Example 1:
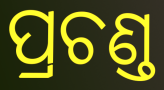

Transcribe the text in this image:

ପ୍ରଚଣ୍ଡ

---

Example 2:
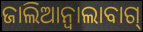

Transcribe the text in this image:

ଜାଲିଆନ୍ଵାଲାବାଗ୍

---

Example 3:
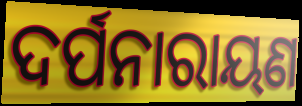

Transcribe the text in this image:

ଦର୍ପନାରାୟଣ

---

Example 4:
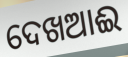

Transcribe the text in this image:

ଦେଖଆଈ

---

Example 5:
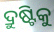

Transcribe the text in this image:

ଦ୍ରୁଷ୍ଟିକୁ